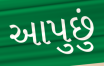
આપુછું